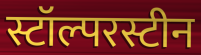
स्टॉल्परस्टीन